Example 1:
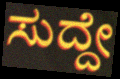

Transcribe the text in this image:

ಸುದ್ದೇ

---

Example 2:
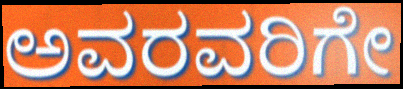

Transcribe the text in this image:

ಅವರವರಿಗೇ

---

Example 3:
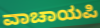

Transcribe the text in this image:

ವಾಚಾಯಪಿ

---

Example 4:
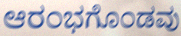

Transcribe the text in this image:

ಆರಂಭಗೊಂಡವು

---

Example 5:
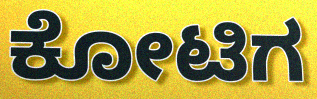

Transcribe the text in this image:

ಕೋಟಿಗ